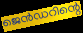
ജെൻഡറിന്റെ